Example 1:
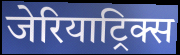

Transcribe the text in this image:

जेरियाट्रिक्स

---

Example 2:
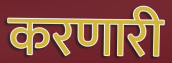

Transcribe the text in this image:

करणारी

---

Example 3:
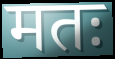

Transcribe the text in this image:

मतः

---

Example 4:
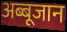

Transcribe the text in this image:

अब्बूजान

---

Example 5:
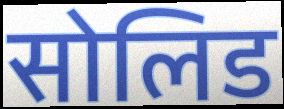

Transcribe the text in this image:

सोलिड